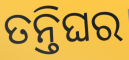
ତନ୍ତିଘର